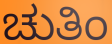
ಚುತಿಂ